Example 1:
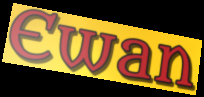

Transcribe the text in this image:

Ewan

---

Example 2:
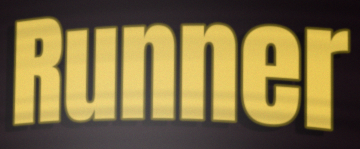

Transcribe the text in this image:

Runner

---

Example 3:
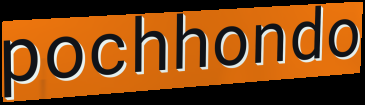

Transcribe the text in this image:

pochhondo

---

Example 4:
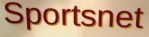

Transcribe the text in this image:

Sportsnet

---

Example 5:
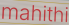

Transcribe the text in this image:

mahithi